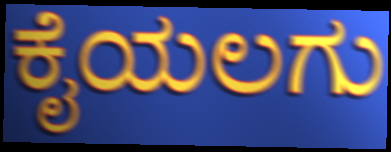
ಕೈಯಲಗು